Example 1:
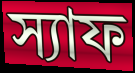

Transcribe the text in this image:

স্যাফ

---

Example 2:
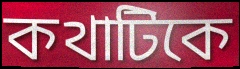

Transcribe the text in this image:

কথাটিকে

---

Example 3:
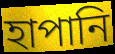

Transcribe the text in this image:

হাপানি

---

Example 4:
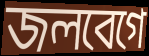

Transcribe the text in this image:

জলবেগে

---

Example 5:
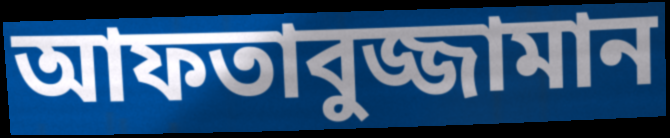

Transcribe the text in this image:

আফতাবুজ্জামান